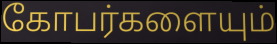
கோபர்களையும்